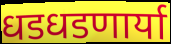
धडधडणार्या